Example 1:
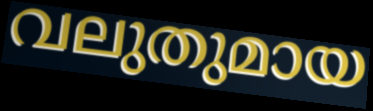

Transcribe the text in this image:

വലുതുമായ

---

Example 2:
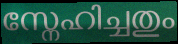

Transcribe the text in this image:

സ്നേഹിച്ചതും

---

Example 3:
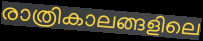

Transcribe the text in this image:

രാത്രികാലങ്ങളിലെ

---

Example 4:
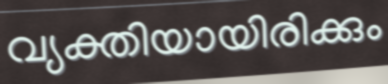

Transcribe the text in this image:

വ്യക്തിയായിരിക്കും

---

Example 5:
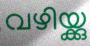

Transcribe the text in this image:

വഴിയ്ക്കു